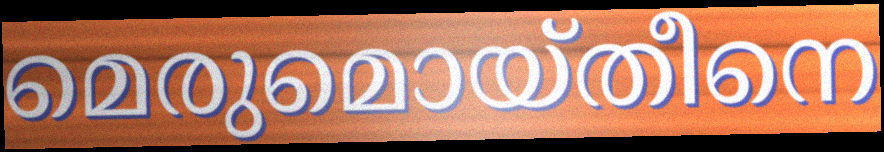
മെരുമൊയ്തീനെ